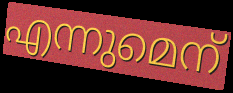
എന്നുമെന്